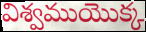
విశ్వముయొక్క